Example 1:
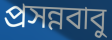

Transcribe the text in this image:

প্রসন্নবাবু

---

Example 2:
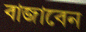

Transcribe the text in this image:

বাজাবেন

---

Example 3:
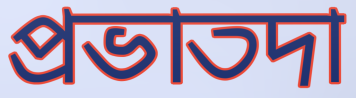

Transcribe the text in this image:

প্রভাতদা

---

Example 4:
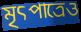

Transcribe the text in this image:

মৃৎপাত্রেও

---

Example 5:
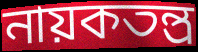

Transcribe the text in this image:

নায়কতন্ত্র